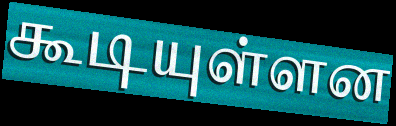
கூடியுள்ளன